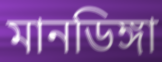
মানডিঙ্গা